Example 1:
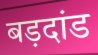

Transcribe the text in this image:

बड़दांड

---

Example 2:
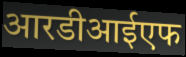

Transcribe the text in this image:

आरडीआईएफ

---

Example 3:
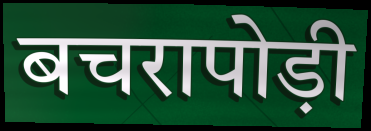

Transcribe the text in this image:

बचरापोड़ी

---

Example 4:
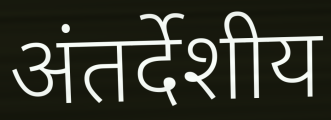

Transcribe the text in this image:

अंतर्देशीय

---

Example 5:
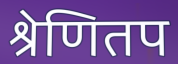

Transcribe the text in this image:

श्रेणितप